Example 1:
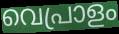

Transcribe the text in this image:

വെപ്രാളം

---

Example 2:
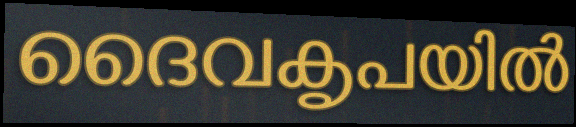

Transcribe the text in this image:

ദൈവകൃപയിൽ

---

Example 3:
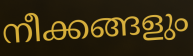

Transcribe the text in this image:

നീക്കങ്ങളും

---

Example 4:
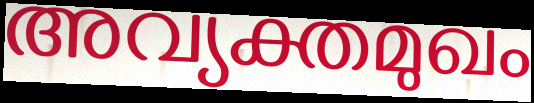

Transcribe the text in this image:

അവ്യക്തമുഖം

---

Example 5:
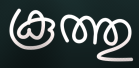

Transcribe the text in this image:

കൂത്തു